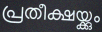
പ്രതീക്ഷയ്ക്കും